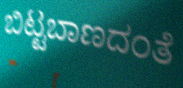
ಬಿಟ್ಟಬಾಣದಂತೆ